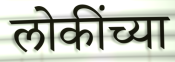
लोकींच्या